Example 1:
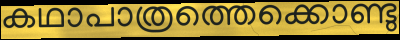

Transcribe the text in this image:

കഥാപാത്രത്തെക്കൊണ്ടു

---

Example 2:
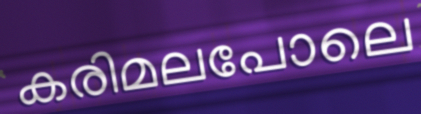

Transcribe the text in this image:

കരിമലപോലെ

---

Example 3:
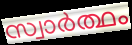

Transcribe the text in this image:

സ്വാർത്ഥം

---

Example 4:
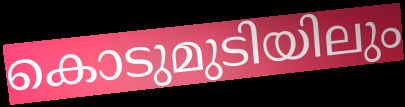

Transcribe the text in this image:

കൊടുമുടിയിലും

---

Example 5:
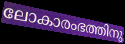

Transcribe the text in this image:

ലോകാരംഭത്തിനു